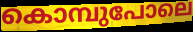
കൊമ്പുപോലെ